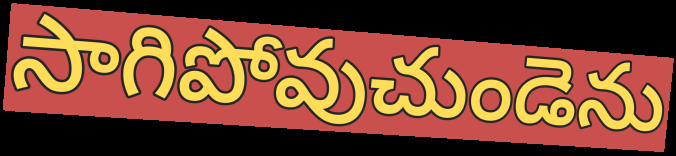
సాగిపోవుచుండెను